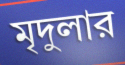
মৃদুলার